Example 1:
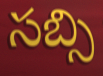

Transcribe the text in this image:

సబ్సి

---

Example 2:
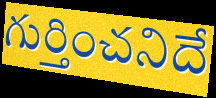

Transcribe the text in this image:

గుర్తించనిదే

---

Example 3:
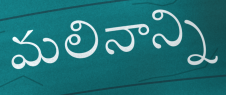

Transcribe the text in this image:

మలినాన్ని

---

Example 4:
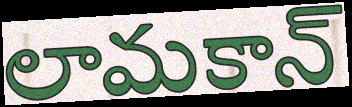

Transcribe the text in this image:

లామకాన్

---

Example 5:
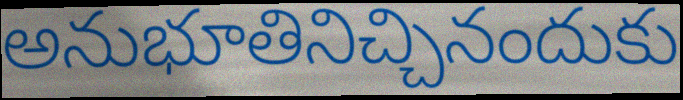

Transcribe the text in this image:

అనుభూతినిచ్చినందుకు